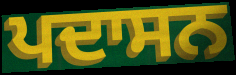
ਪਦਾਸਨ